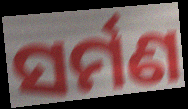
ସର୍ମଣ